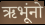
ऋभूंनो